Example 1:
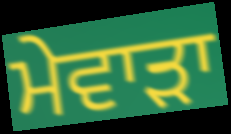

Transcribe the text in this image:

ਮੇਵਾੜਾ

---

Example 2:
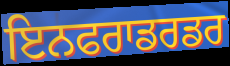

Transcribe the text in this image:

ਇਨਫਰਾਡਰਡਰ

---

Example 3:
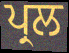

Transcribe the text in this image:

ਪ੍ਰਲ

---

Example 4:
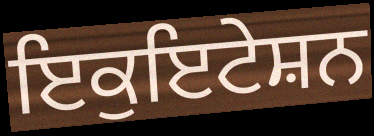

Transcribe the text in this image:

ਇਕੁਇਟੇਸ਼ਨ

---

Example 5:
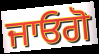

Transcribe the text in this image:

ਜਾਓਗੋ